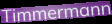
Timmermann